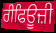
ਰੀਫਿਊਜ਼ੀ